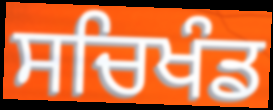
ਸਚਿਖੰਡ